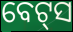
ବେଟ୍‍ସ